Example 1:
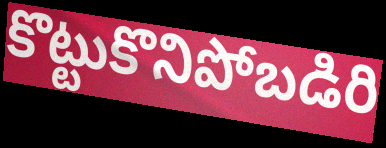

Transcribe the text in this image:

కొట్టుకొనిపోబడిరి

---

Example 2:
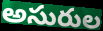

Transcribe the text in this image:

అసురుల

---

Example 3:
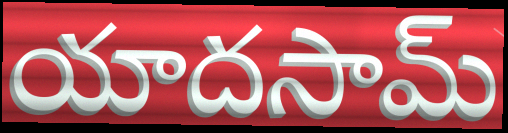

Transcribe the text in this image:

యాదసామ్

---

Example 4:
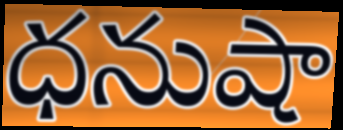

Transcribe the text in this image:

ధనుషా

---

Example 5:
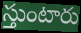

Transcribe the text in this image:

స్తుంటారు